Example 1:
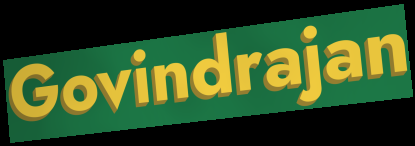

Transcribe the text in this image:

Govindrajan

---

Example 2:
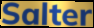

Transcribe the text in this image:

Salter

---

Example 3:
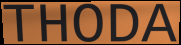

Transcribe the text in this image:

THODA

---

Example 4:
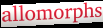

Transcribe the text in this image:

allomorphs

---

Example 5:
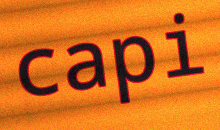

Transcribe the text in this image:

capi